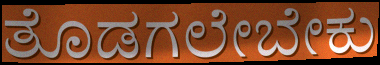
ತೊಡಗಲೇಬೇಕು